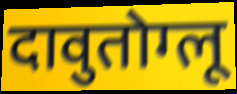
दावुतोग्लू